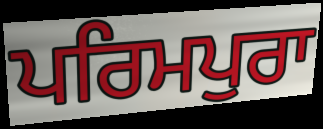
ਪਰਿਮਪੁਰਾ